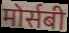
मोर्सबी